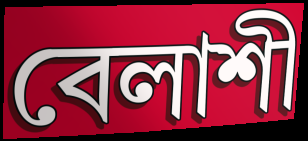
বেলাশী